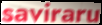
saviraru